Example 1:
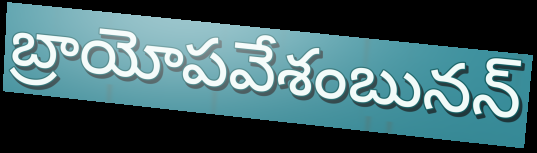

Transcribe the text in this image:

బ్రాయోపవేశంబునన్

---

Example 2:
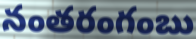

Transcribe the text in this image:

నంతరంగంబు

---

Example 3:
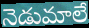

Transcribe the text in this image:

నెడుమాలే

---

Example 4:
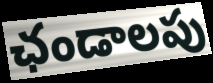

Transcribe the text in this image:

ఛండాలపు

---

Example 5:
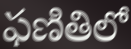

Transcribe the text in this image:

ఫణితిలో